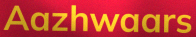
Aazhwaars